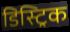
डिस्ट्रिक